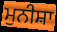
ਮੁਨੀਸ਼ਾ